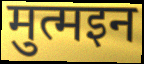
मुत्मइन